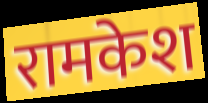
रामकेश